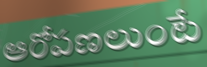
ఆరోపణలుంటే